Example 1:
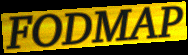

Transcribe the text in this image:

FODMAP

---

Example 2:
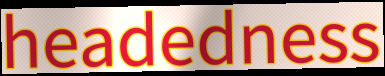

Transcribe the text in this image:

headedness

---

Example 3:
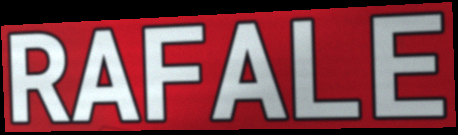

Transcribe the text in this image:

RAFALE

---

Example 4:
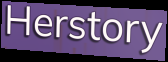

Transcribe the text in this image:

Herstory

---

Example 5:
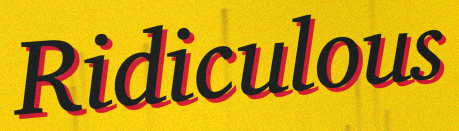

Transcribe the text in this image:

Ridiculous